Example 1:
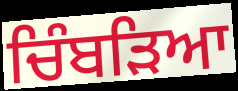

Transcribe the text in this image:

ਚਿੰਬੜਿਆ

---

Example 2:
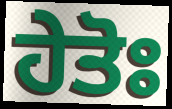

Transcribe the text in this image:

ਹੇਤੋਃ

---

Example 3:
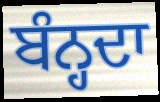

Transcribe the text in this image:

ਬੰਨ੍ਹਦਾ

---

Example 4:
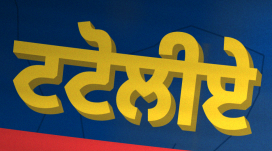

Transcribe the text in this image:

ਟਟੋਲੀਏ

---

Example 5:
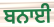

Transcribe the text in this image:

ਬਨਾਈ